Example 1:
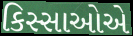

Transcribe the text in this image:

કિસ્સાઓએ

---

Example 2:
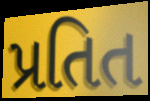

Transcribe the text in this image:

પ્રતિત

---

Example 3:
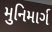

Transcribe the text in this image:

મુનિમાર્ગ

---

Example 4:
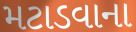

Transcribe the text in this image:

મટાડવાના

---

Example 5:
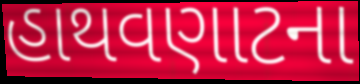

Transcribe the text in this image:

હાથવણાટના